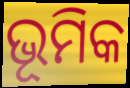
ଭୂମିକ